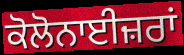
ਕੋਲੋਨਾਈਜ਼ਰਾਂ